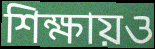
শিক্ষায়ও